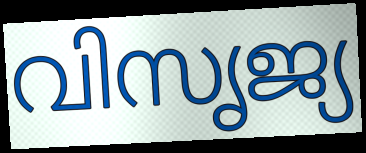
വിസൃജ്യ